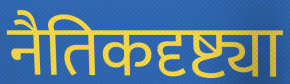
नैतिकदृष्ट्या